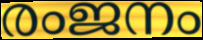
രംജനം